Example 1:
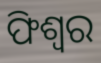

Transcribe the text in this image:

ଫିଶ୍ୱର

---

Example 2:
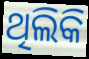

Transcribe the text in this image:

ଥିଲିକି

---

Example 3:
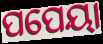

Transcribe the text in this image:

ପପେୟା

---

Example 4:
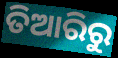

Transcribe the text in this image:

ତିଆରିରୁ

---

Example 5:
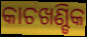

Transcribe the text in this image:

କାଚଖଣ୍ଡିକ